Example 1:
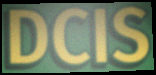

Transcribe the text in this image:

DCIS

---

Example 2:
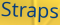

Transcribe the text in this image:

Straps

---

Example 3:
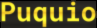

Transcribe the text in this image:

Puquio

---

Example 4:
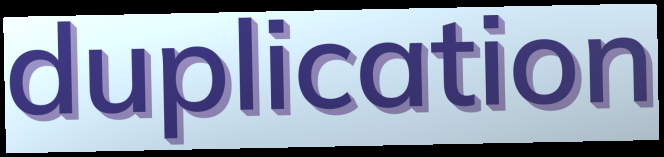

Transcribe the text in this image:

duplication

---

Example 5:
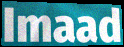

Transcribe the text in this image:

Imaad